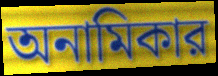
অনামিকার